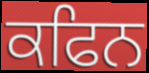
ਕਫਿਨ